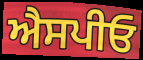
ਐਸਪੀਓ